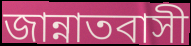
জান্নাতবাসী